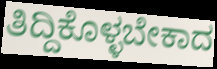
ತಿದ್ದಿಕೊಳ್ಳಬೇಕಾದ